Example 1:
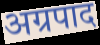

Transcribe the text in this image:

अग्रपाद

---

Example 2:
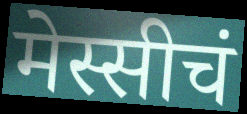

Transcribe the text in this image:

मेस्सीचं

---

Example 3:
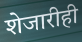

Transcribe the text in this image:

शेजारीही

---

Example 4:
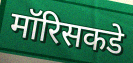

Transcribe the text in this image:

मॉरिसकडे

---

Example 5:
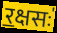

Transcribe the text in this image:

र॒क्षसः॑